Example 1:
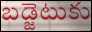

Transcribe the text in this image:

బడ్జెటుకు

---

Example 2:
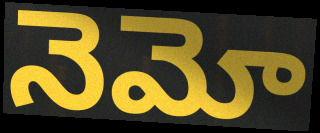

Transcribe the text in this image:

నెమో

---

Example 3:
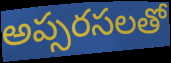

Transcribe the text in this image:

అప్సరసలతో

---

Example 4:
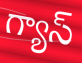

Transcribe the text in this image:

గ్యాస్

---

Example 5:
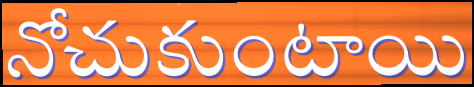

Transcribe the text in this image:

నోచుకుంటాయి